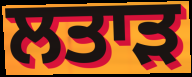
ਲਤਾੜ